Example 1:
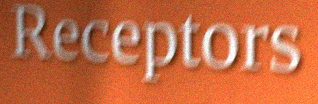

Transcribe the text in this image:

Receptors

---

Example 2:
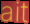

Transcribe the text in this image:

ait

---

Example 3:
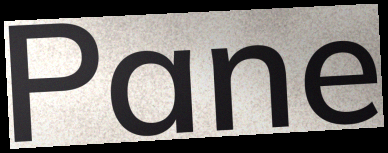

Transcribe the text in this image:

Pane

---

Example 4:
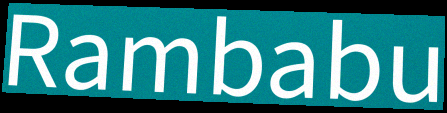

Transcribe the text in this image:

Rambabu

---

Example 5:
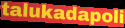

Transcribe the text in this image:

talukadapoli